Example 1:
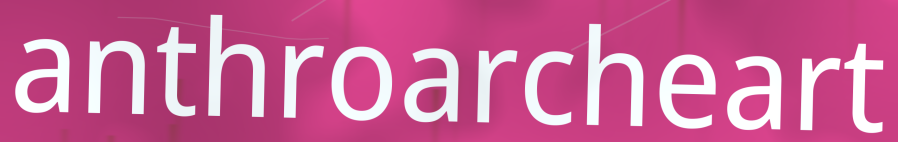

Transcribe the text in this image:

anthroarcheart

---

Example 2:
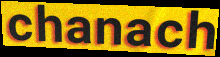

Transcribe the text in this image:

chanach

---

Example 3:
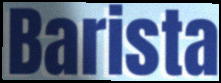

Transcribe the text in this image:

Barista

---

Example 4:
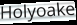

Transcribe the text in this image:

Holyoake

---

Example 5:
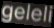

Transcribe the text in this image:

geleli